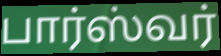
பார்ஸ்வர்